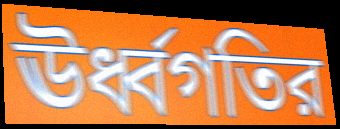
ঊর্ধ্বগতির